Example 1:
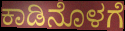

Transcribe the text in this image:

ಕಾಡಿನೊಳಗೆ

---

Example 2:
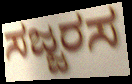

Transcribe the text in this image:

ಸಜ್ಜರಸ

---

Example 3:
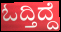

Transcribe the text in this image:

ಓದ್ತಿದ್ದೆ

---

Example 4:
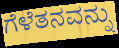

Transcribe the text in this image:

ಗೆಳೆತನವನ್ನು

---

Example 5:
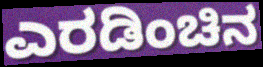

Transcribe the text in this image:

ಎರಡಿಂಚಿನ